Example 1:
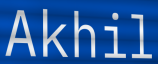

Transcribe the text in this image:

Akhil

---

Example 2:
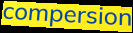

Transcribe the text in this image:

compersion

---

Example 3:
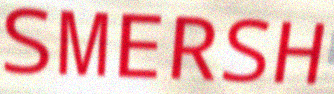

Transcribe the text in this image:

SMERSH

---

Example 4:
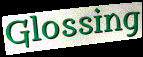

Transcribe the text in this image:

Glossing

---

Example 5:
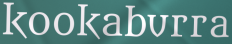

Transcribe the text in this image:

kookaburra